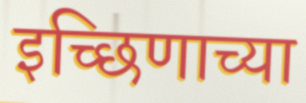
इच्छिणाच्या